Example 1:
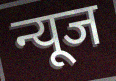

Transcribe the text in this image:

न्यूज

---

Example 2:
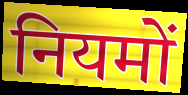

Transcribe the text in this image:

नियमों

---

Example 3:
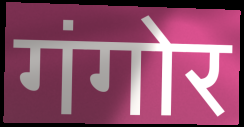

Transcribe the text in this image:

गंगोर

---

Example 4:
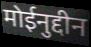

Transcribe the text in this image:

मोईनुद्दीन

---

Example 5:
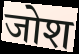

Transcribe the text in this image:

जोश